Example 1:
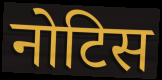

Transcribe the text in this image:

नोटिस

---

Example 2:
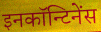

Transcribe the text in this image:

इनकॉन्टिनेंस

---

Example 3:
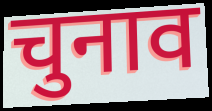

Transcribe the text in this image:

चुनाव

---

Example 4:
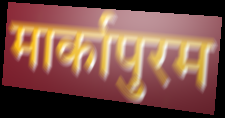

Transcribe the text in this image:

मार्कापुरम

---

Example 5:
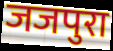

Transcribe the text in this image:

जजपुरा